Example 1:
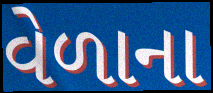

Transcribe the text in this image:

વેળાના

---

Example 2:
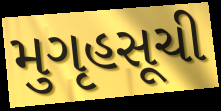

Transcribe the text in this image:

મુગૃહસૂચી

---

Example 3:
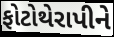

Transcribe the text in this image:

ફોટોથેરાપીને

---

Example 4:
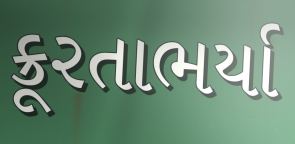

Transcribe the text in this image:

ક્રૂરતાભર્યા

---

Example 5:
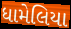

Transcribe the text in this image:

ધામેલિયા